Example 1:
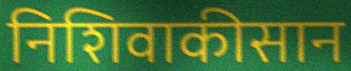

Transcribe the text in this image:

निशिवाकीसान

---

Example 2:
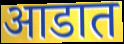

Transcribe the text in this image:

आडात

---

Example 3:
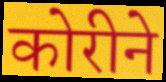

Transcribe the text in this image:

कोरीने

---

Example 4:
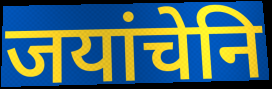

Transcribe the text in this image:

जयांचेनि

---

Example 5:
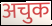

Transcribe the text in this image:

अचुक